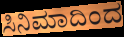
ಸಿನಿಮಾದಿಂದ